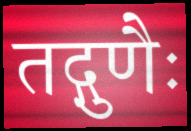
तद्गुणैः